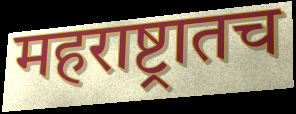
महराष्ट्रातच